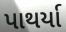
પાથર્યા